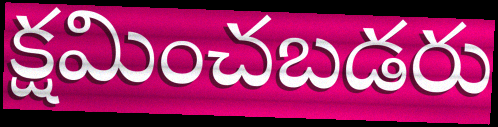
క్షమించబడరు